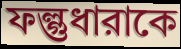
ফল্গুধারাকে